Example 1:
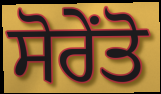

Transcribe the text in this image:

ਸੋਰੇਂਤੋ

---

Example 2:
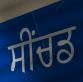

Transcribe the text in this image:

ਸੀਂਚਡ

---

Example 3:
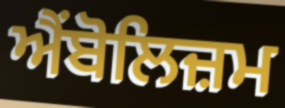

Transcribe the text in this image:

ਐਂਬੋਲਿਜ਼ਮ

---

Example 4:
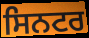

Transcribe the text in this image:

ਸਿਨਟਰ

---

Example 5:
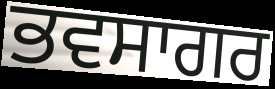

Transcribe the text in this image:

ਭਵਸਾਗਰ